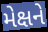
મેક્ષને